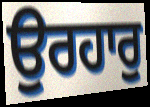
ਉਰਹਾਰੁ